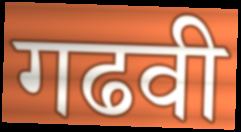
गढवी